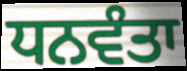
ਧਨਵੰਤਾ